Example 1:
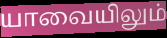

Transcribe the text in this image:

யாவையிலும்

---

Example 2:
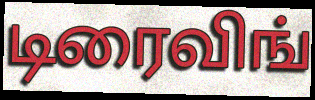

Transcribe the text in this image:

டிரைவிங்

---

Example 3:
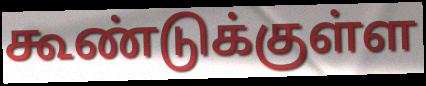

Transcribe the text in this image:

கூண்டுக்குள்ள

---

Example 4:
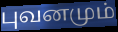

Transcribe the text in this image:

புவனமும்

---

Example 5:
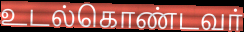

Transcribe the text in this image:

உடல்கொண்டவர்